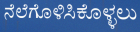
ನೆಲೆಗೊಳಿಸಿಕೊಳ್ಳಲು